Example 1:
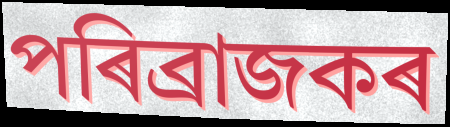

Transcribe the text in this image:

পৰিব্ৰাজকৰ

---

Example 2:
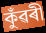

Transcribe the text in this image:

কুঁৱৰী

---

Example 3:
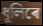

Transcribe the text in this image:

ধূলিৰে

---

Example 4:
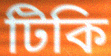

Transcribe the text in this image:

টিকি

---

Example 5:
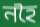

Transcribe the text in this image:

নহৈ